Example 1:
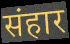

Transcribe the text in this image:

संहार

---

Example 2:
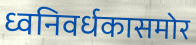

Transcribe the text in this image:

ध्वनिवर्धकासमोर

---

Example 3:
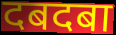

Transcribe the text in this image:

दबदबा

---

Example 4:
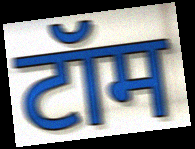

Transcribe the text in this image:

टॉम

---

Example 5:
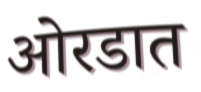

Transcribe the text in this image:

ओरडात